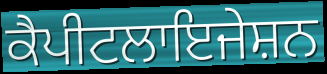
ਕੈਪੀਟਲਾਇਜੇਸ਼ਨ